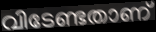
വിടേണ്ടതാണ്